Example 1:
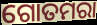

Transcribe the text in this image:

ଗୋତମରା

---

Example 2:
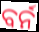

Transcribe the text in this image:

ବର୍ନ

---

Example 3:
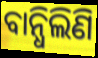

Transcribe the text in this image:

ବାନ୍ଧିଲିଣି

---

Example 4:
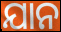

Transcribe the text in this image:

ଯାନ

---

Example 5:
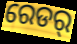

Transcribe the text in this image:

ରେଡର୍